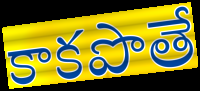
కాకపొతే